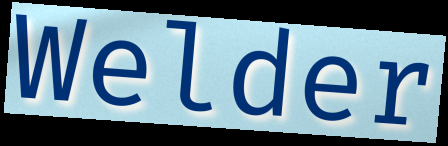
Welder